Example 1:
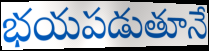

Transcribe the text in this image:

భయపడుతూనే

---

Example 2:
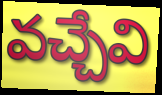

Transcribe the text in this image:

వచ్చేవి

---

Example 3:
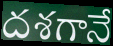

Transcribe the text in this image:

దశగానే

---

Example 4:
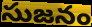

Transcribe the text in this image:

సుజనం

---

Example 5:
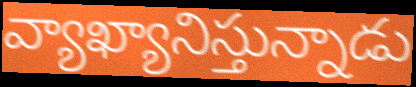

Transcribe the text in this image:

వ్యాఖ్యానిస్తున్నాడు